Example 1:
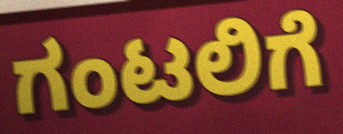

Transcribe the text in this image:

ಗಂಟಲಿಗೆ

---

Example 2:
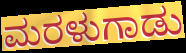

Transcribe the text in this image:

ಮರಳುಗಾಡು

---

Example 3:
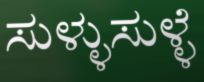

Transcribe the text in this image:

ಸುಳ್ಳುಸುಳ್ಳೆ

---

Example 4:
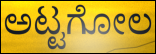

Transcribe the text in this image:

ಅಟ್ಟಗೋಲ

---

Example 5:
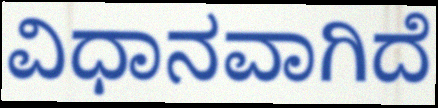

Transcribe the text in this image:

ವಿಧಾನವಾಗಿದೆ